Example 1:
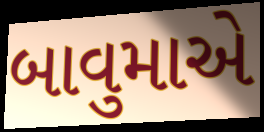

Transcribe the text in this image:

બાવુમાએ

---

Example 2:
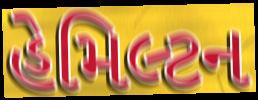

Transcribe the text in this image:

હેમિલ્ટન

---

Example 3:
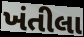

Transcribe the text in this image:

ખંતીલા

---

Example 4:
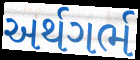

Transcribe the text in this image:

અર્થગર્ભ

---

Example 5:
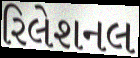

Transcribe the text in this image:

રિલેશનલ